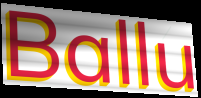
Ballu